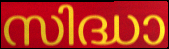
സിദ്ധാ